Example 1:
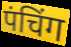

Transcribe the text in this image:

पंचिंग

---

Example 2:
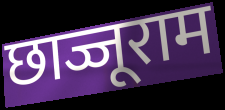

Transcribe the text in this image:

छाज्जूराम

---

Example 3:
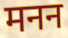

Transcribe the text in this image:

मनन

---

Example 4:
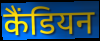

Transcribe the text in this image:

कैंडियन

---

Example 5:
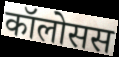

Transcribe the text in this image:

कॉलोसस